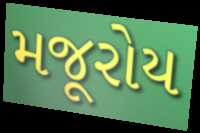
મજૂરોય